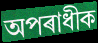
অপৰাধীক